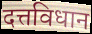
दत्तविधान